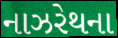
નાઝરેથના